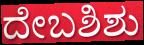
ದೇಬಶಿಶು